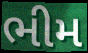
ભીમ